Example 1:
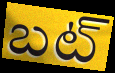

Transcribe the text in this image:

బట్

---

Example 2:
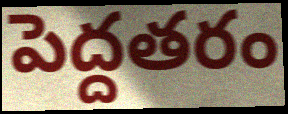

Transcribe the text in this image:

పెద్దతరం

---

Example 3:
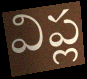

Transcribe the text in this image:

విప్ల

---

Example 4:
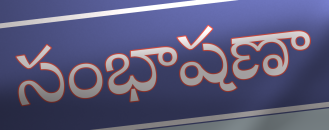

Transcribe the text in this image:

సంభాషణా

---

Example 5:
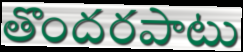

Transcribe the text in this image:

తొందరపాటు